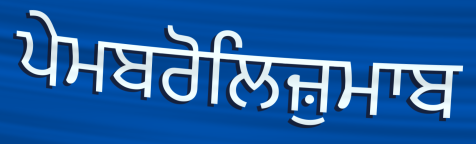
ਪੇਮਬਰੋਲਿਜ਼ੁਮਾਬ